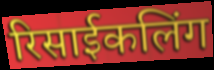
रिसाईकलिंग